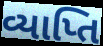
વ્યાપ્તિ